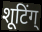
शूटिंग्